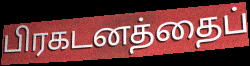
பிரகடனத்தைப்